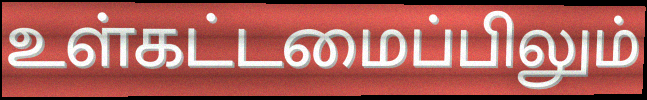
உள்கட்டமைப்பிலும்